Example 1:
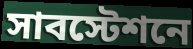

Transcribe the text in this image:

সাবস্টেশনে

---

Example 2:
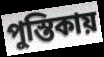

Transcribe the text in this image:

পুস্তিকায়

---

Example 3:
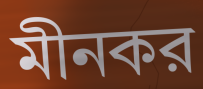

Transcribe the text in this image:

মীনকর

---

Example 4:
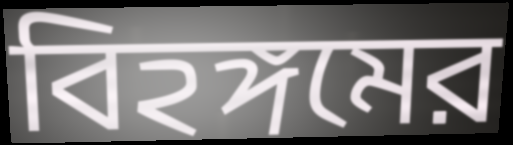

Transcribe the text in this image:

বিহঙ্গমের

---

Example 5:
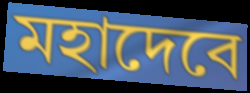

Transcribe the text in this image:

মহাদেবে